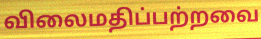
விலைமதிப்பற்றவை